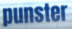
punster